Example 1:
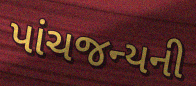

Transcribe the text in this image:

પાંચજન્યની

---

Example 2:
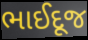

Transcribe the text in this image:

ભાઈદૂજ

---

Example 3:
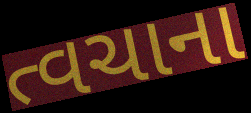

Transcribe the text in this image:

ત્વચાના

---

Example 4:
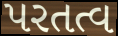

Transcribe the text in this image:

પરતત્વ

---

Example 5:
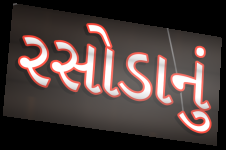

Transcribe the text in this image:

રસોડાનું